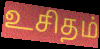
உசிதம்